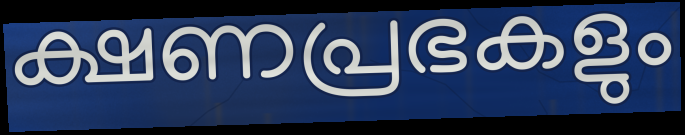
ക്ഷണപ്രഭകളും